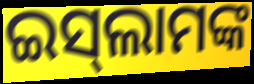
ଇସ୍‌ଲାମଙ୍କ